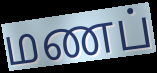
மணப்